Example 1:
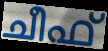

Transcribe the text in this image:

ചീഫ്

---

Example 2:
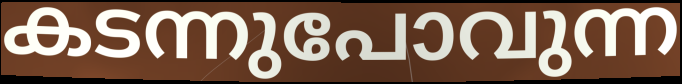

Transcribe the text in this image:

കടന്നുപോവുന്ന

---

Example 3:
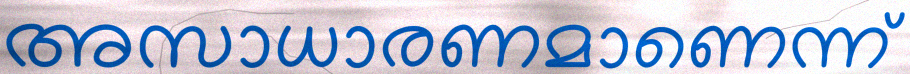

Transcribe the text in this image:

അസാധാരണമാണെന്ന്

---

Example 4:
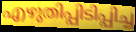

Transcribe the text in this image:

എഴുതിപ്പിടിപ്പിച്ച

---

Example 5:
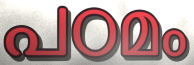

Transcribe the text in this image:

പഠമം